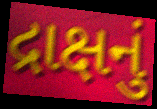
દ્રાક્ષનું